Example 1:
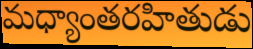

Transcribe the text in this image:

మధ్యాంతరహితుడు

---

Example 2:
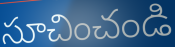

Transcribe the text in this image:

సూచించండి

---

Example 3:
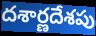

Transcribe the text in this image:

దశార్ణదేశపు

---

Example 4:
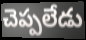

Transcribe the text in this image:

చెప్పలేడు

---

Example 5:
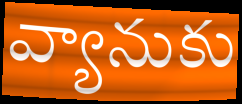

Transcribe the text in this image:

వ్యానుకు